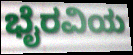
ಭೈರವಿಯ